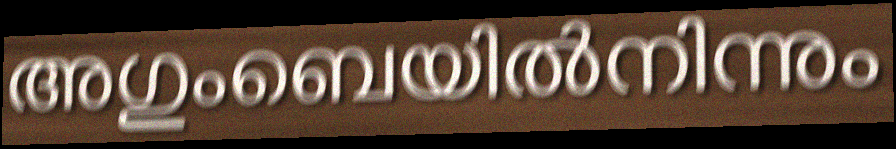
അഗുംബെയിൽനിന്നും